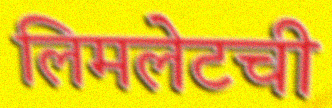
लिमलेटची